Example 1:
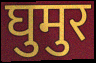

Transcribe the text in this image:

घुमुर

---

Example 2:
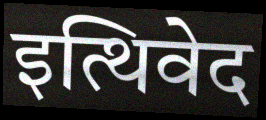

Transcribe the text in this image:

इत्थिवेद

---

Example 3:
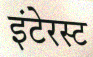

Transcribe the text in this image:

इंटेरस्ट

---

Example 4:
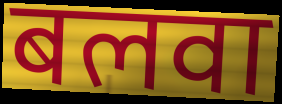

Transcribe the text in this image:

बलवा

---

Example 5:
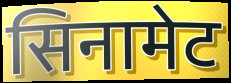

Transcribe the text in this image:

सिनामेट